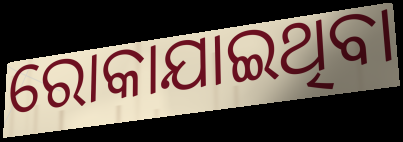
ରୋକାଯାଇଥିବା